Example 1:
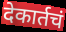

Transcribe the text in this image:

देकार्तचं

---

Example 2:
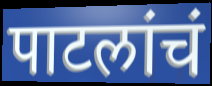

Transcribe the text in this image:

पाटलांचं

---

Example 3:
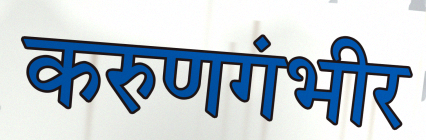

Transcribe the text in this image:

करुणगंभीर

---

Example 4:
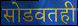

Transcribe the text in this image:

सोडवतही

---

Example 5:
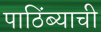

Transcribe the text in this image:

पाठिंब्याची